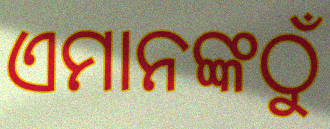
ଏମାନଙ୍କଠୁଁ